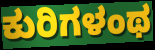
ಕುರಿಗಳಂಥ